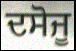
ਦਸੋਜੂ